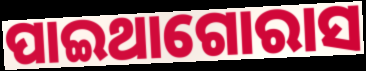
ପାଇଥାଗୋରାସ